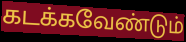
கடக்கவேண்டும்